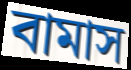
বামাস